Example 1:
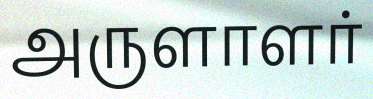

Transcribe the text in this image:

அருளாளர்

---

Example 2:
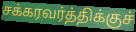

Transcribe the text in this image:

சக்கரவர்த்திக்குச்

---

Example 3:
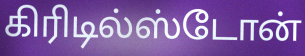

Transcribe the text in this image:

கிரிடில்ஸ்டோன்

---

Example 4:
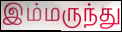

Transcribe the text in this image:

இம்மருந்து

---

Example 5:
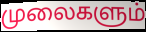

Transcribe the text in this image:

முலைகளும்